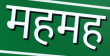
महमह